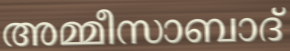
അമ്മീസാബാദ്